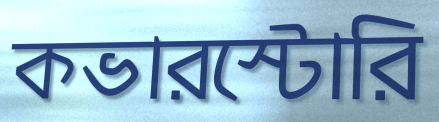
কভারস্টোরি